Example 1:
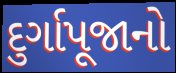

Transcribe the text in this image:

દુર્ગાપૂજાનો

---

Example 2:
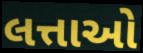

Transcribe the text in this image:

લત્તાઓ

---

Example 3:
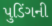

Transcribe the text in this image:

પુડિંગની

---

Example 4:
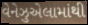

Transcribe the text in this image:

વેનેઝુએલામાંથી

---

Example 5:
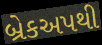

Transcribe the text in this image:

બ્રેકઅપથી